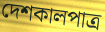
দেশকালপাত্র